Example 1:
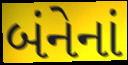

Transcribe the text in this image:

બંનેનાં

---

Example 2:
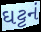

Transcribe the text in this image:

ઘટ્ટનં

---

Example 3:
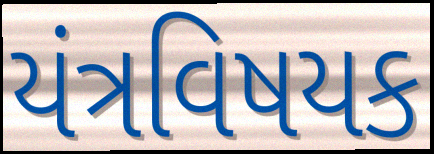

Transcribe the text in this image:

યંત્રવિષયક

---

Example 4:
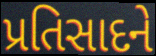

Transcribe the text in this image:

પ્રતિસાદને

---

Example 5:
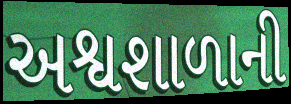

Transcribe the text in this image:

અશ્વશાળાની